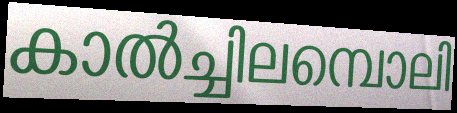
കാൽച്ചിലമ്പൊലി